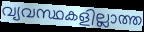
വ്യവസ്ഥകളില്ലാത്ത